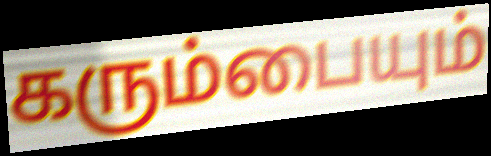
கரும்பையும்